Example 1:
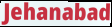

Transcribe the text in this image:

Jehanabad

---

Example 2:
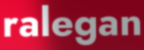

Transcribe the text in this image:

ralegan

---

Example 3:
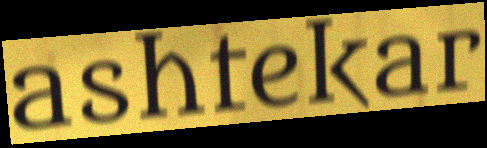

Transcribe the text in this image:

ashtekar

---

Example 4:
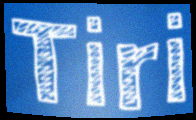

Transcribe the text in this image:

Tiri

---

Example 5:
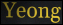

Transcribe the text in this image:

Yeong